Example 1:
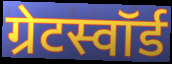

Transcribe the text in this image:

ग्रेटस्वॉर्ड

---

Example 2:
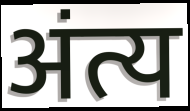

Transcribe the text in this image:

अंत्य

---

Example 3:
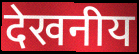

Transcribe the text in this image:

देखनीय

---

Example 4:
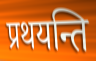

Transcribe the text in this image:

प्रथयन्ति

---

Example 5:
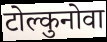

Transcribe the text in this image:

टोल्कुनोवा